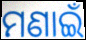
ମଣାଇଁ